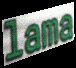
lama